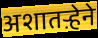
अशातऱ्‍हेने